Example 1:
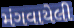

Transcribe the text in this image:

મંગવાયેલી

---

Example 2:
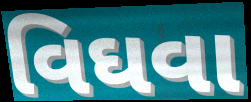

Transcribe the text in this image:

વિઘવા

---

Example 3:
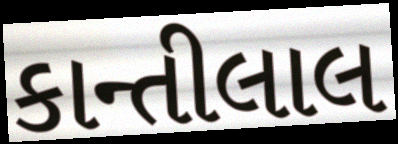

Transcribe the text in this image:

કાન્તીલાલ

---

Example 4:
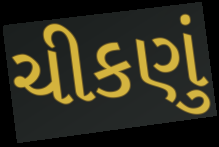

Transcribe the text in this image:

ચીકણું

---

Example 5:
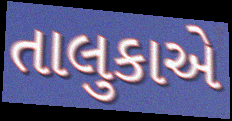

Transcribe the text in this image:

તાલુકાએ